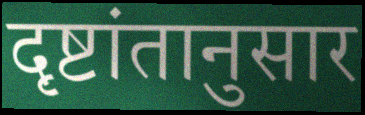
दृष्टांतानुसार